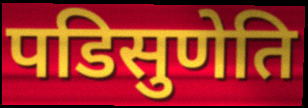
पडिसुणेति